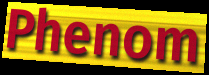
Phenom